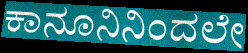
ಕಾನೂನಿನಿಂದಲೇ